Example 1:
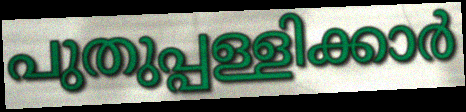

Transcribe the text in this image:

പുതുപ്പള്ളിക്കാർ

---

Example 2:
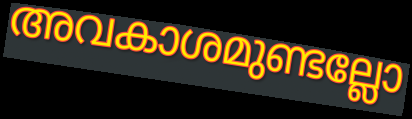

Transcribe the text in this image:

അവകാശമുണ്ടല്ലോ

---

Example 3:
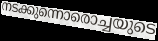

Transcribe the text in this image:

നടക്കുന്നൊരൊച്ചയുടെ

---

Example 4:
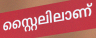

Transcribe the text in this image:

സ്റ്റൈലിലാണ്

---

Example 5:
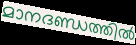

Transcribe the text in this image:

മാനദണ്ഡത്തിൽ